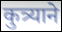
कुत्र्याने